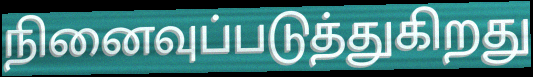
நினைவுப்படுத்துகிறது